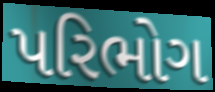
પરિભોગ